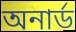
অনার্ড